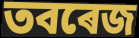
তবৰেজ